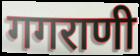
गगराणी